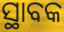
ସ୍ଥାବକ